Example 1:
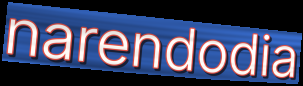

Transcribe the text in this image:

narendodia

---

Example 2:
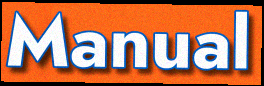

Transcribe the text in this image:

Manual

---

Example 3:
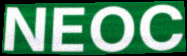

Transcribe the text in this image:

NEOC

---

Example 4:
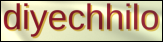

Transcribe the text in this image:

diyechhilo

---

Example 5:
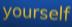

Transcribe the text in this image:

yourself